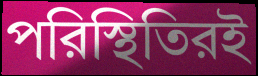
পরিস্থিতিরই